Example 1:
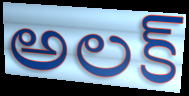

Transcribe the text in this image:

అలక్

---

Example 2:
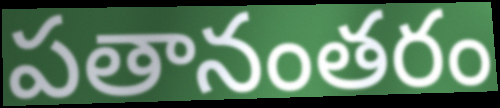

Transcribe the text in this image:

పతానంతరం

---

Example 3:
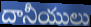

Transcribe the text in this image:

దానీయులు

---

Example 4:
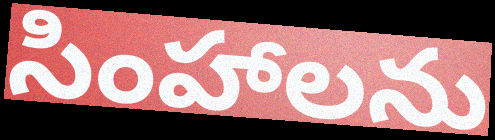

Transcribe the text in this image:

సింహాలను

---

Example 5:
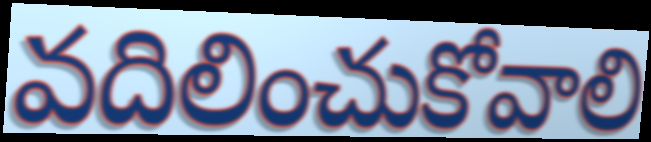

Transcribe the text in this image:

వదిలించుకోవాలి